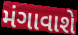
મંગાવાશે